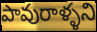
పావురాళ్ళని